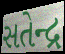
સતેન્દ્ર